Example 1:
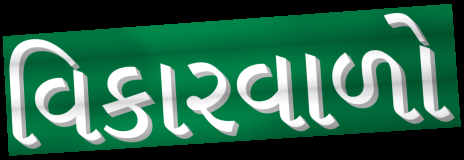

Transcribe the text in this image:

વિકારવાળો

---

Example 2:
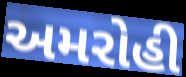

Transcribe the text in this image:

અમરોહી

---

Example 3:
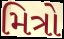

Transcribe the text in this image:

મિત્રો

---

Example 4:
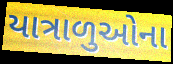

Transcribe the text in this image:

યાત્રાળુઓના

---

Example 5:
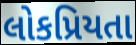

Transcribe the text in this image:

લોકપ્રિયતા